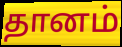
தானம்